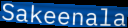
Sakeenala